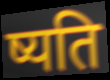
ष्यति